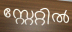
സ്റ്റേറ്റിൽ